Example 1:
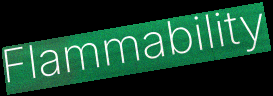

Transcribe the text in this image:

Flammability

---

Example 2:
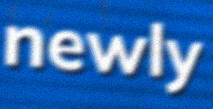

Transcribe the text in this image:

newly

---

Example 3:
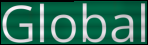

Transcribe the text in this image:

Global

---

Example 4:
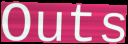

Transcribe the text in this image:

Outs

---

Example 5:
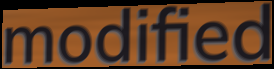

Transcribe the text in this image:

modified